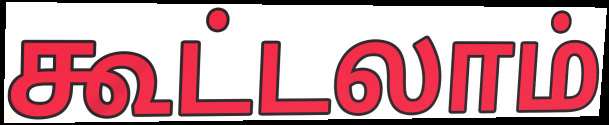
கூட்டலாம்